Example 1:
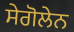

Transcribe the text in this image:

ਸੇਗੋਲੇਨ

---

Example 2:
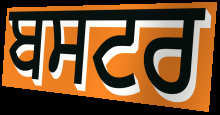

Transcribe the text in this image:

ਬਸਟਰ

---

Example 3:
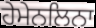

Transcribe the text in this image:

ਹੇਮੇਨਲਿਨਾ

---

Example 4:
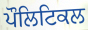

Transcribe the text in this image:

ਪੌਲਿਟਿਕਲ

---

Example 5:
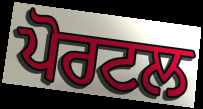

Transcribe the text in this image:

ਪੋਰਟਲ